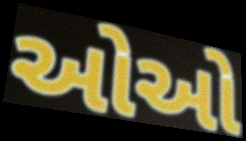
ઓઓ